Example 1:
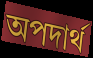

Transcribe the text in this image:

অপদার্থ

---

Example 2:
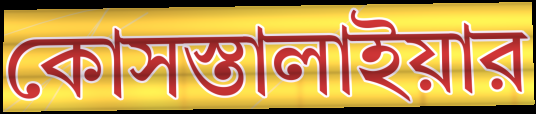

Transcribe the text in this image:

কোসস্তালাইয়ার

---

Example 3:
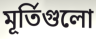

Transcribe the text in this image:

মূর্তিগুলো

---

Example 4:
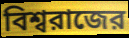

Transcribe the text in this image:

বিশ্বরাজের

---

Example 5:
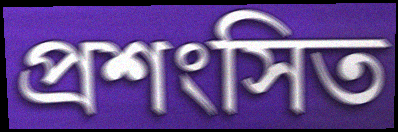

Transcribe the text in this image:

প্রশংসিত